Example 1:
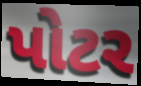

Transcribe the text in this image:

પોટર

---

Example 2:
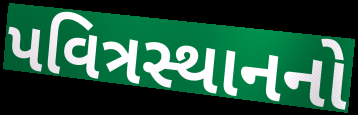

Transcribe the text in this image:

પવિત્રસ્થાનનો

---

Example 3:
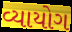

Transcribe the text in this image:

વ્યાયોગ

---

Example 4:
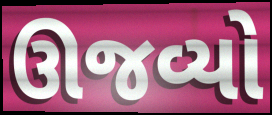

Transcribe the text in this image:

ઊજવ્યો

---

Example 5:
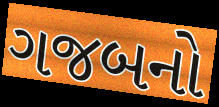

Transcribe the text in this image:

ગજબનો